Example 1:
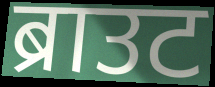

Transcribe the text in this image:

ब्राउट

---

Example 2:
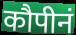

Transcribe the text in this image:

कौपीनं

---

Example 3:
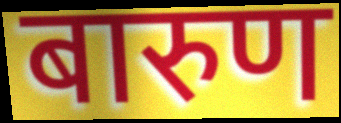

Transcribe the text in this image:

बारुण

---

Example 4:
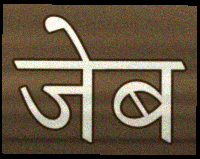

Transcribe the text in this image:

जेब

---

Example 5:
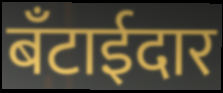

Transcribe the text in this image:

बँटाईदार